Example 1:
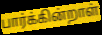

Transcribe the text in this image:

பார்க்கின்றாள்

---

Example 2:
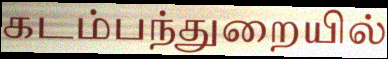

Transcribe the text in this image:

கடம்பந்துறையில்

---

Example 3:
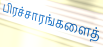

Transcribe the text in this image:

பிரச்சாரங்களைத்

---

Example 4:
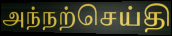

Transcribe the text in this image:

அந்நற்செய்தி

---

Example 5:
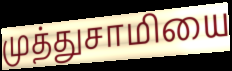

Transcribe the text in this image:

முத்துசாமியை